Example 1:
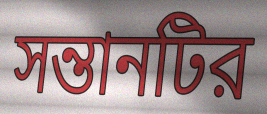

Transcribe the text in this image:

সন্তানটির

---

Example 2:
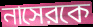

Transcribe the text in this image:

নাসেরকে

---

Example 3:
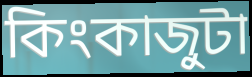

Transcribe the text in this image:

কিংকাজুটা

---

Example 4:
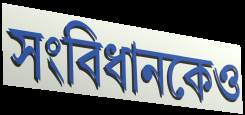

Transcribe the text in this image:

সংবিধানকেও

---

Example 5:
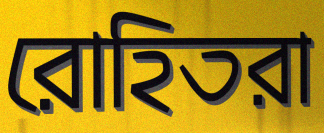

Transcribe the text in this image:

রোহিতরা